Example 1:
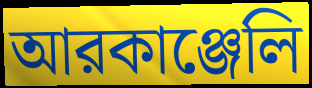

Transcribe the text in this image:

আরকাঞ্জেলি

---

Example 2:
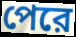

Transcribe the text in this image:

পেরে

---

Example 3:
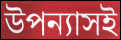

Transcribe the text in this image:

উপন্যাসই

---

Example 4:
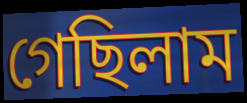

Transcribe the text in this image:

গেছিলাম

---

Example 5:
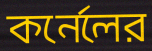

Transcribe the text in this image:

কর্নেলের